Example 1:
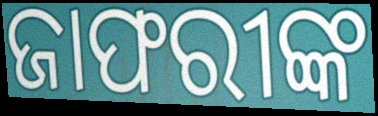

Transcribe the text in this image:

ଜାଫରୀଙ୍କ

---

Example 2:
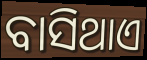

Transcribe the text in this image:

ବାସିଥାଏ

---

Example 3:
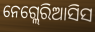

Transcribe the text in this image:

ନେଗ୍ଲେରିଆସିସ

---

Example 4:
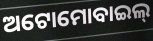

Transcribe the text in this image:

ଅଟୋମୋବାଇଲ୍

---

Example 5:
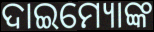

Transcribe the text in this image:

ଦାଇମ୍ଯୋଙ୍କ